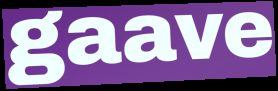
gaave